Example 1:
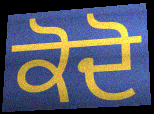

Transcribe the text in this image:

ਕੋਦੋ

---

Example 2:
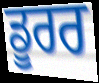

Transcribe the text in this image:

ਡੂਰਰ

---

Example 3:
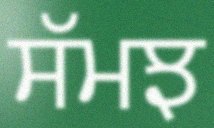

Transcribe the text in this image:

ਸੱਮਝ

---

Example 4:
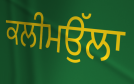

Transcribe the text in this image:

ਕਲੀਮਉੱਲਾ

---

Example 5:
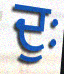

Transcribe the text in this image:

ਦੁਃ